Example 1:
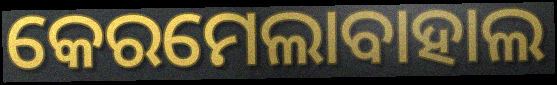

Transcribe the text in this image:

କେରମେଲାବାହାଲ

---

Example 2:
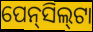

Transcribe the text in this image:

ପେନ୍‌ସିଲ୍‍ଟା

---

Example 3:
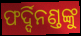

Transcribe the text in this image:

ଫର୍ଦ୍ଦିନଣ୍ଡଙ୍କୁ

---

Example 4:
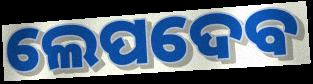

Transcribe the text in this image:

ଲେପଦେବ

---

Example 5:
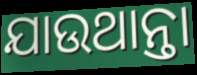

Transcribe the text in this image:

ଯାଉଥାନ୍ତା